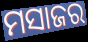
ମସାଜର